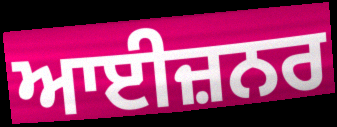
ਆਈਜ਼ਨਰ